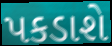
પકડાશે